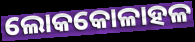
ଲୋକକୋଳାହଳ